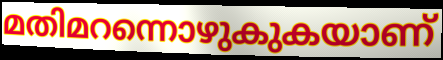
മതിമറന്നൊഴുകുകയാണ്